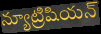
న్యూట్రిషియన్